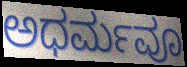
ಅಧರ್ಮವೂ